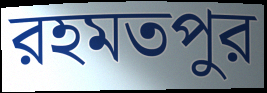
রহমতপুর